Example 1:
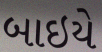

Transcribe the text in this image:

બાઇયે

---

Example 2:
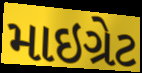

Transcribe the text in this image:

માઇગ્રેટ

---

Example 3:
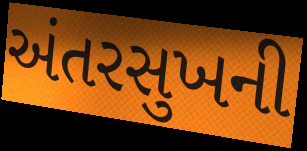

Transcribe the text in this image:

અંતરસુખની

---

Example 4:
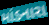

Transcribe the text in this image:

માંડનારા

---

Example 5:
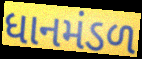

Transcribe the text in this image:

ધાનમંડળ